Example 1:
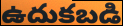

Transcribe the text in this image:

ఉదుకబడి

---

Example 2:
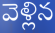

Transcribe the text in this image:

వెళ్లిన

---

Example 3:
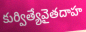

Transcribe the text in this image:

కుర్విత్యేవైతదాహ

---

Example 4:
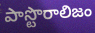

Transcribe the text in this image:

పాస్టొరాలిజం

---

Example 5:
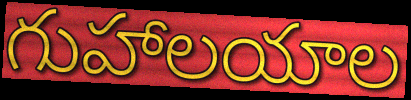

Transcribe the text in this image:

గుహాలయాల